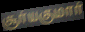
சூர்யகுமார்